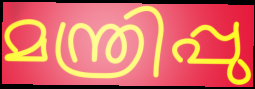
മന്ത്രിപ്പു